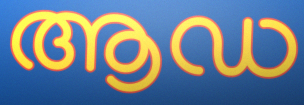
ആഡ